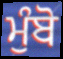
ਮੁੰਬੋ